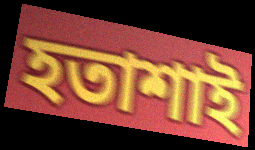
হতাশাই